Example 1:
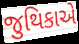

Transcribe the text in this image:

જુથિકાએ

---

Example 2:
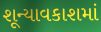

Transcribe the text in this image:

શૂન્યાવકાશમાં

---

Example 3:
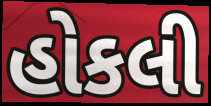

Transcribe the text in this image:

હોકલી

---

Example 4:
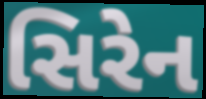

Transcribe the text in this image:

સિરેન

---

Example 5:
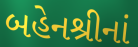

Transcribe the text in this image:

બહેનશ્રીનાં